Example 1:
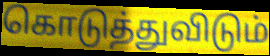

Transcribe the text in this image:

கொடுத்துவிடும்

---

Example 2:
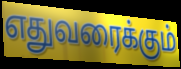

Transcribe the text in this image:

எதுவரைக்கும்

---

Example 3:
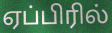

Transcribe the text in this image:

ஏப்பிரில்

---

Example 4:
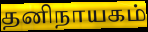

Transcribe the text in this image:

தனிநாயகம்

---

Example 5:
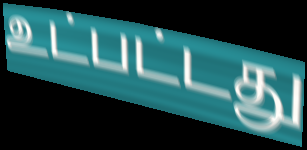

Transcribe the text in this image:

உட்பட்டது